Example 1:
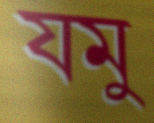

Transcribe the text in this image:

যমু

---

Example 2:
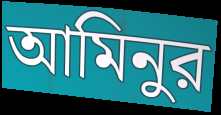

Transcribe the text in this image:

আমিনুর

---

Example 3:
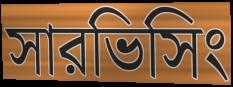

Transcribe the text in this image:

সারভিসিং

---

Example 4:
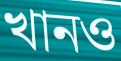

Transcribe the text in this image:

খানও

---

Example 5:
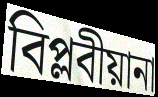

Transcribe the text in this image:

বিপ্লবীয়ানা